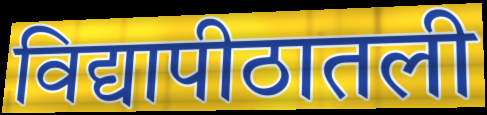
विद्यापीठातली